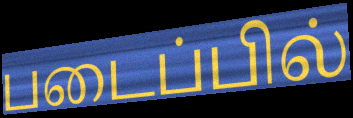
படைப்பில்